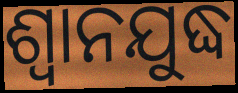
ଶ୍ଵାନଯୁଦ୍ଧ